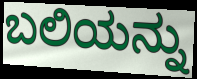
ಬಲಿಯನ್ನು